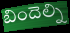
బిందెల్ని